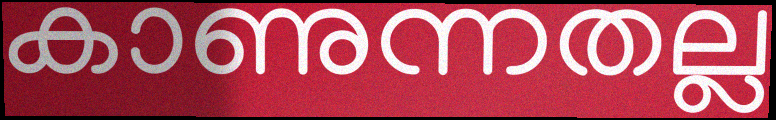
കാണുന്നതല്ല